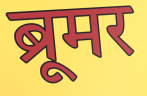
ब्रूमर